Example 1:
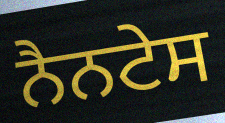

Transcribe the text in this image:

ਨੈਨਟੇਸ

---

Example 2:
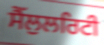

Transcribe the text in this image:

ਸੈੱਲੁਲਰਿਟੀ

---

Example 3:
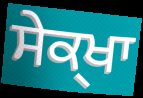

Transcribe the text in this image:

ਸੇਕ੍ਖਾ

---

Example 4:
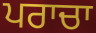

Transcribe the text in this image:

ਪਰਾਚਾ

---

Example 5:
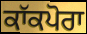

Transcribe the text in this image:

ਕਾੱਕਪੋਰਾ